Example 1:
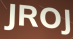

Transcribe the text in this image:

JROJ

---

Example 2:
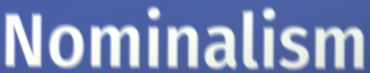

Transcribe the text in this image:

Nominalism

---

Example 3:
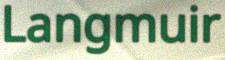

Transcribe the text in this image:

Langmuir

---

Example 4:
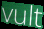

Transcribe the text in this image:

vult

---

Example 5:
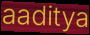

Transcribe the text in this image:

aaditya